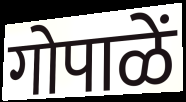
गोपाळें